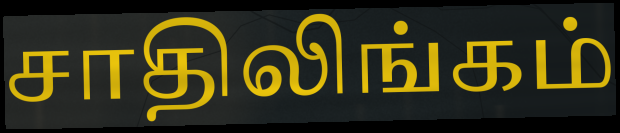
சாதிலிங்கம்